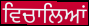
ਵਿਚਾਲਿਆਂ